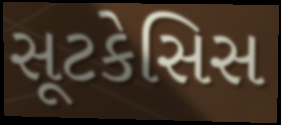
સૂટકેસિસ